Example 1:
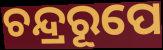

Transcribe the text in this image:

ଚନ୍ଦ୍ରରୂପେ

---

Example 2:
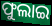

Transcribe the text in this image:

ଫୁଲାଇ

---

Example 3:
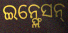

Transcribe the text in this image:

ଇନ୍ଫ୍ଲେସନ୍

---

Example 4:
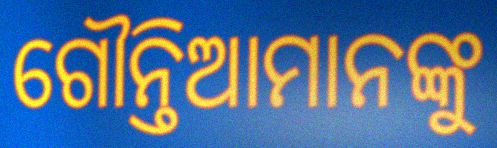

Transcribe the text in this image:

ଗୌନ୍ତିଆମାନଙ୍କୁ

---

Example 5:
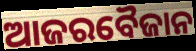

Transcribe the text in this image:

ଆଜରବୈଜାନ